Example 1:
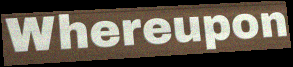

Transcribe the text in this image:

Whereupon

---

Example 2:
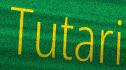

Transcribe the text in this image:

Tutari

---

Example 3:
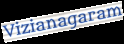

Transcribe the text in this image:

Vizianagaram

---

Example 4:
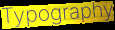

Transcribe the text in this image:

Typography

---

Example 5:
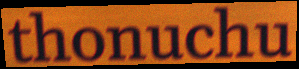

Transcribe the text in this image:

thonuchu